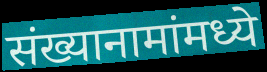
संख्यानामांमध्ये